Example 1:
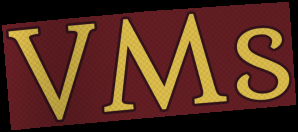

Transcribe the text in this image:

VMs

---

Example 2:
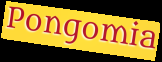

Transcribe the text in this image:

Pongomia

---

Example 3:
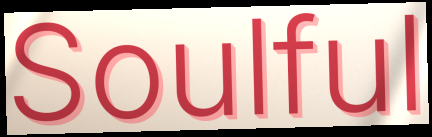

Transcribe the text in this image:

Soulful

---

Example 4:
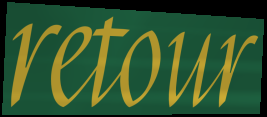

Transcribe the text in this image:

retour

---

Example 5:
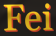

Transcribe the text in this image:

Fei